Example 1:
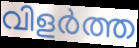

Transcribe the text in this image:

വിളർത്ത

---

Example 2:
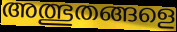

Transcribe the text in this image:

അത്ഭുതങ്ങളെ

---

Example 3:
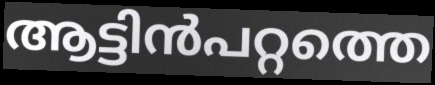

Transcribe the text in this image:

ആട്ടിൻപറ്റത്തെ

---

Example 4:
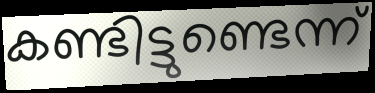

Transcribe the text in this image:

കണ്ടിട്ടുണ്ടെന്ന്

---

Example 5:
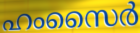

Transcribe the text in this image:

ഹംസൈർ